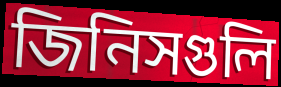
জিনিসগুলি